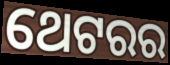
ଥେଟରର